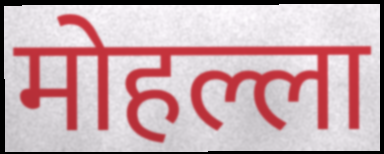
मोहल्ला